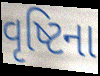
વૃષ્ટિના